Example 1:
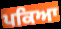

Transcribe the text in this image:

ਪਕਿਆ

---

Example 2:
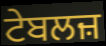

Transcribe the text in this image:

ਟੇਬਲਜ਼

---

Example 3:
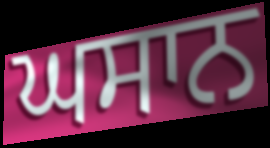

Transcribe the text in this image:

ਘਸਾਨ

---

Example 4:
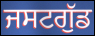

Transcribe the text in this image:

ਜਸਟਗੁੱਡ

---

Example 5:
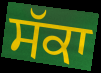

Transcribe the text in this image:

ਸੱਕਾ